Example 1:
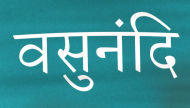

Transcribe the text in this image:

वसुनंदि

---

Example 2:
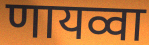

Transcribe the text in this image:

णायव्वा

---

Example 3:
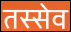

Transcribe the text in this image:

तस्सेव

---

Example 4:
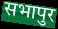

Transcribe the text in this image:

सभापुर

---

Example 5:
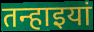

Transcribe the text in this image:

तन्हाइयां